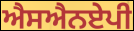
ਐਸਐਨਏਪੀ